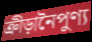
ক্রীড়ানৈপুণ্য